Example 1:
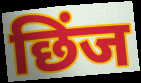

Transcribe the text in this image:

छिंज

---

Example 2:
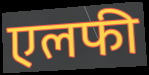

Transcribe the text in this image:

एलफी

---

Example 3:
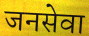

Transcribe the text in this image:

जनसेवा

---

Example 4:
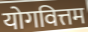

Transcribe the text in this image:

योगवित्तम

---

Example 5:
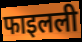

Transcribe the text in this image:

फाइलली